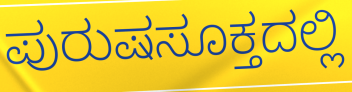
ಪುರುಷಸೂಕ್ತದಲ್ಲಿ